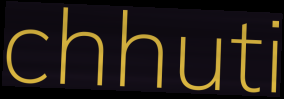
chhuti